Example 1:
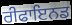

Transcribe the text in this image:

ਰੀਫਾਇਨਡ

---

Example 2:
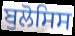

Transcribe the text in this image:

ਬੁਲੋਸਿਸ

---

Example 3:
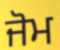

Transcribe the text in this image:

ਜੋਮ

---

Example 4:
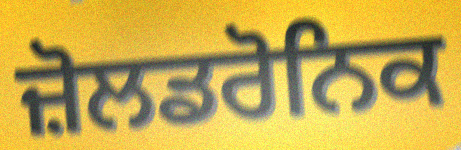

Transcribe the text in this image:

ਜ਼ੋਲਡਰੋਨਿਕ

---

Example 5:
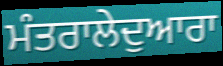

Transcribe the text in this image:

ਮੰਤਰਾਲੇਦੁਆਰਾ